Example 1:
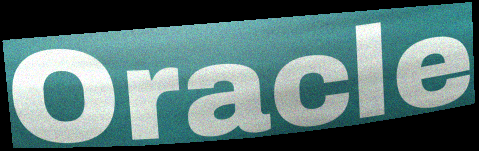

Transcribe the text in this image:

Oracle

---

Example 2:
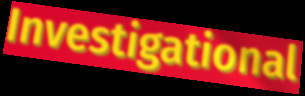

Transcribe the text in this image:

Investigational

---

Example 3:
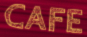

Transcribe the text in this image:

CAFE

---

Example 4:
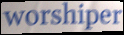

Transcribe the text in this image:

worshiper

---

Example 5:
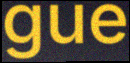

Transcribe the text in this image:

gue